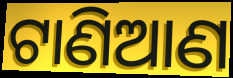
ଟାଣିଆଣ